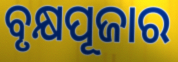
ବୃକ୍ଷପୂଜାର